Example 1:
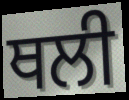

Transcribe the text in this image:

ਥਲੀ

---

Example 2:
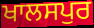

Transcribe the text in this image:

ਖਾਲਸਪੁਰ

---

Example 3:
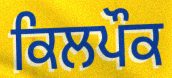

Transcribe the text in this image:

ਕਿਲਪੌਕ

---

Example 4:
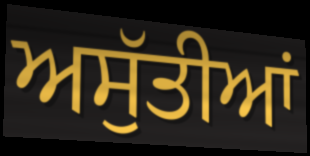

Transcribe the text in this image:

ਅਸੁੱਤੀਆਂ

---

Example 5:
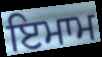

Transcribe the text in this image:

ਇਮਾਮ